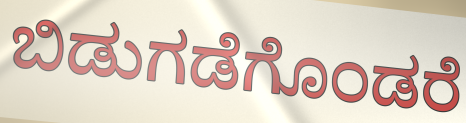
ಬಿಡುಗಡೆಗೊಂಡರೆ